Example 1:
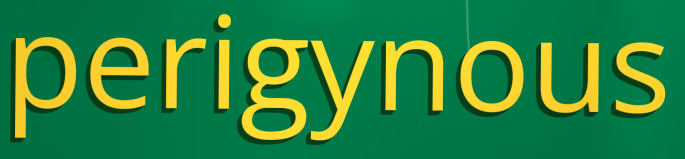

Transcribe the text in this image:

perigynous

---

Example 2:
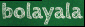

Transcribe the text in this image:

bolayala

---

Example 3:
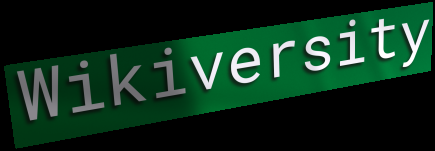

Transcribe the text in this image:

Wikiversity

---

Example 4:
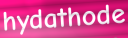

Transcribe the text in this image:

hydathode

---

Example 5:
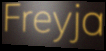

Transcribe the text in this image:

Freyja